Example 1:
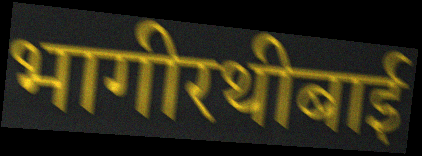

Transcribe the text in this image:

भागीरथीबाई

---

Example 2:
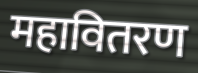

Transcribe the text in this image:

महावितरण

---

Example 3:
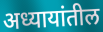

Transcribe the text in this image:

अध्यायांतील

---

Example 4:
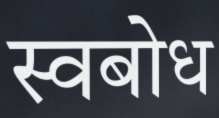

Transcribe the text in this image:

स्वबोध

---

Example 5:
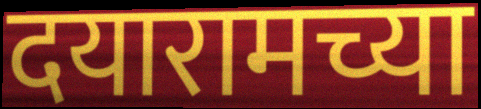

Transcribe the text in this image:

दयारामच्या